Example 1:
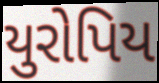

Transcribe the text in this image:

યુરોપિય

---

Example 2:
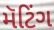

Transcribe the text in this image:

મૅટિંગ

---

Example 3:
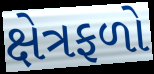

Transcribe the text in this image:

ક્ષેત્રફળો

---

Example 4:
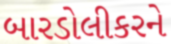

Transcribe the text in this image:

બારડોલીકરને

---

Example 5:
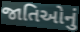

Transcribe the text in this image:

જાતિઓનું